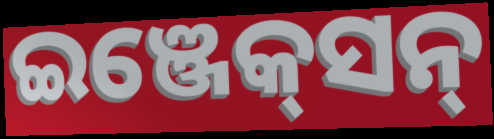
ଇଞ୍ଜେକ୍‍ସନ୍